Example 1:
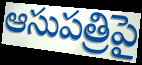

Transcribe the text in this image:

ఆసుపత్రిపై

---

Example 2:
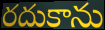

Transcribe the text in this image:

రదుకాను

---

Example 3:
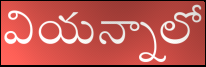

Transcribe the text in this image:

వియన్నాలో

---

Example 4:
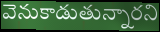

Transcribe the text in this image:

వెనుకాడుతున్నారని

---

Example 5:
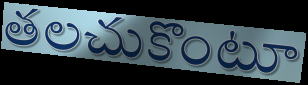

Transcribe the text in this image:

తలచుకొంటూ